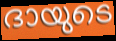
ദായുടെ